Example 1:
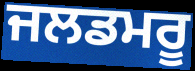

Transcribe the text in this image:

ਜਲਡਮਰੂ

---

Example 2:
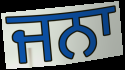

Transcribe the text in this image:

ਜਨਾ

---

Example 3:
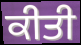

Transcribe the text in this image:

ਕੀਤੀ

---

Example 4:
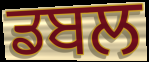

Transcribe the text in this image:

ਡਬਲ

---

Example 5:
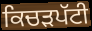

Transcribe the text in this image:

ਕਿਚੜਪੱਟੀ